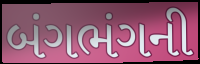
બંગભંગની